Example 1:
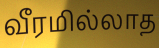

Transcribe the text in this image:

வீரமில்லாத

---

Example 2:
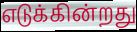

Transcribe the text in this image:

எடுக்கின்றது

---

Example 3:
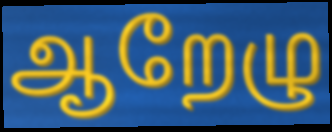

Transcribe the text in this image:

ஆறேழு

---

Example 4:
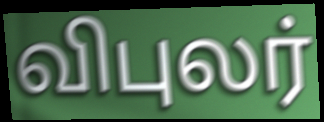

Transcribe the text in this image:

விபுலர்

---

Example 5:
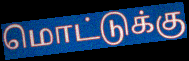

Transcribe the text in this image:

மொட்டுக்கு